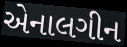
એનાલગીન